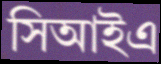
সিআইএ